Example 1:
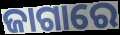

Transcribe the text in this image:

ଜାଗାରେ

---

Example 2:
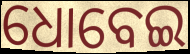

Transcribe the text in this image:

ଧୋବେଇ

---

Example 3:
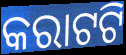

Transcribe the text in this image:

କରାଟଟି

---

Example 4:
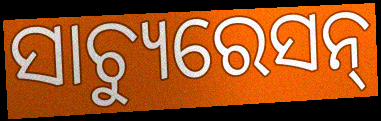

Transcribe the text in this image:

ସାଚ୍ୟୁରେସନ୍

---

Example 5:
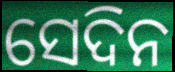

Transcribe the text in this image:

ସେଦିନ